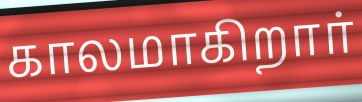
காலமாகிறார்